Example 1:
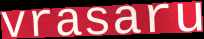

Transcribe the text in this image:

vrasaru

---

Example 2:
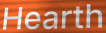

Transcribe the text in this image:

Hearth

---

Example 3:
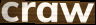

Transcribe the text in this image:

craw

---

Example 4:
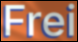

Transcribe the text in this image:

Frei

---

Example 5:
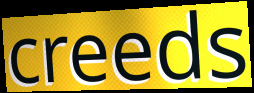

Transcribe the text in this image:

creeds